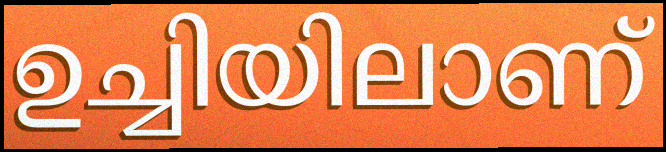
ഉച്ചിയിലാണ്